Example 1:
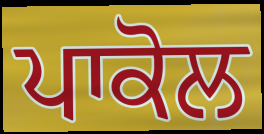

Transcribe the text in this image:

ਪਾਕੋਲ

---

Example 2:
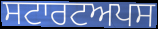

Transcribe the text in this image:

ਸਟਾਰਟਅਪਸ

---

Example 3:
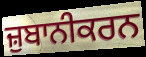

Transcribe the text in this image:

ਜ਼ੁਬਾਨੀਕਰਨ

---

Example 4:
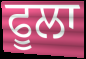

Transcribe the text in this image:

ਫੂਲਾ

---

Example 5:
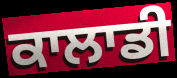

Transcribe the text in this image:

ਕਾਲਾਡੀ